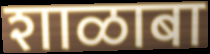
शाळाबा